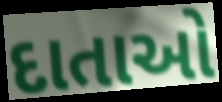
દાતાઓ